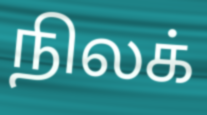
நிலக்